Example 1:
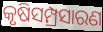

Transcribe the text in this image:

କୃଷିସମ୍ପ୍ରସାରଣ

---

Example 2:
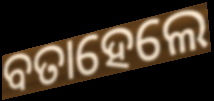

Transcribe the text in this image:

ବତାହେଲେ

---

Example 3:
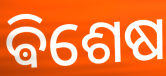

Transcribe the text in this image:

ଵିଶେଷ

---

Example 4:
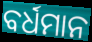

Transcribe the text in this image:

ବର୍ଧମାନ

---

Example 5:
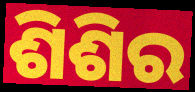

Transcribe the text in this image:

ଶିଶିର